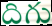
దిగు